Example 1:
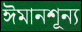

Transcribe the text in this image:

ঈমানশূন্য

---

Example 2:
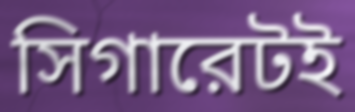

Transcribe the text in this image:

সিগারেটই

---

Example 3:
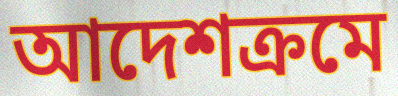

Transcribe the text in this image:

আদেশক্রমে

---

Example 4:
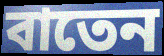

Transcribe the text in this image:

বাতেন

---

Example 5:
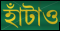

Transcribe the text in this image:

হাঁটাও